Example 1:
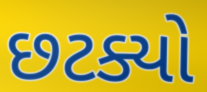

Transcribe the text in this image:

છટક્યો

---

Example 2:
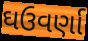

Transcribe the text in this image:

ઘઉવર્ણા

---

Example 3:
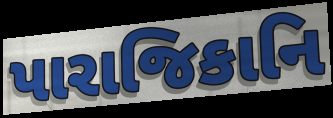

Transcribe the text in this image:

પારાજિકાનિ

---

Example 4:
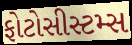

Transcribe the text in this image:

ફોટોસીસ્ટમ્સ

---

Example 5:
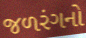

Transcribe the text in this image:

જળરંગનો